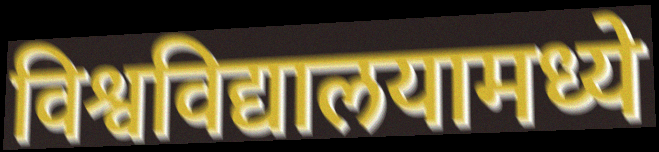
विश्वविद्यालयामध्ये